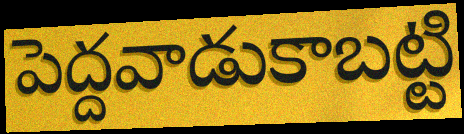
పెద్దవాడుకాబట్టి